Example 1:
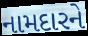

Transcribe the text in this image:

નામદારને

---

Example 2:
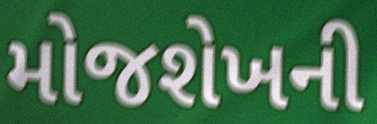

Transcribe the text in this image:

મોજશેખની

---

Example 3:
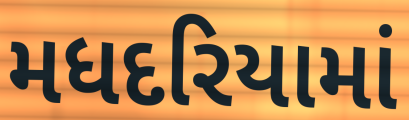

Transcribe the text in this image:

મધદરિયામાં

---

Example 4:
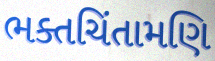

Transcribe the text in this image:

ભક્તચિંતામણિ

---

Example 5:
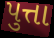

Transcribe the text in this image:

પુત્તા